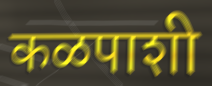
कळपाशी